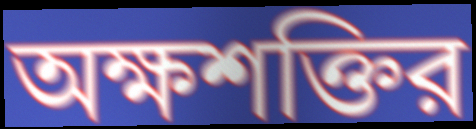
অক্ষশক্তির